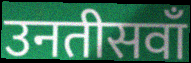
उनतीसवाँ